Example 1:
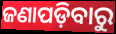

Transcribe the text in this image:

ଜଣାପଡ଼ିବାରୁ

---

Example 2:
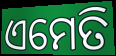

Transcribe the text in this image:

ଏମେତି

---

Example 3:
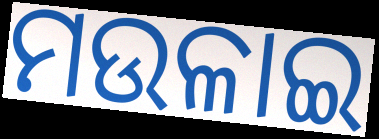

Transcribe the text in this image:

ମଉଳାଇ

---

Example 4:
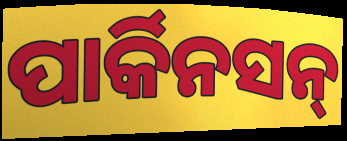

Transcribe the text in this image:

ପାର୍କିନସନ୍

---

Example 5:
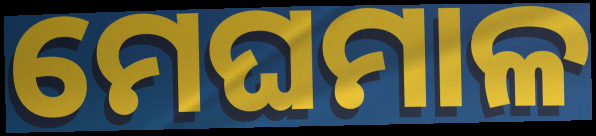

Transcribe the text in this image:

ମେଘମାଳ